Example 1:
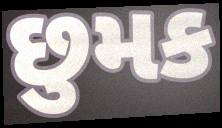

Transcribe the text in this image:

છુમક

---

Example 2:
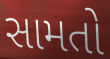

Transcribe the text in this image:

સામતો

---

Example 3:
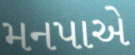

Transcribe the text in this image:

મનપાએ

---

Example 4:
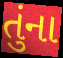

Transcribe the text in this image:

તુંના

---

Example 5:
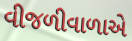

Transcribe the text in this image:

વીજળીવાળાએ